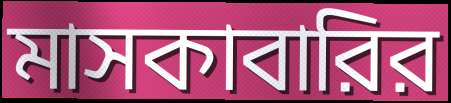
মাসকাবারির